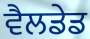
ਵੈਲਡੇਡ